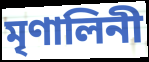
মৃণালিনী